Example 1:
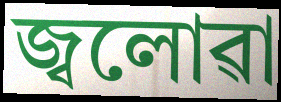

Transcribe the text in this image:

জ্বলোৱা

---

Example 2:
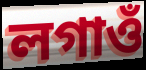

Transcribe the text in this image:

লগাওঁ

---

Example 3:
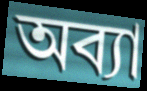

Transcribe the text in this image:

অব্যা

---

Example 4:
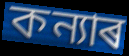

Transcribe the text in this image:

কন্যাৰ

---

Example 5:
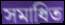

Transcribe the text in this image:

সমাধিত